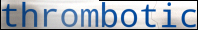
thrombotic